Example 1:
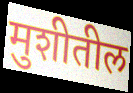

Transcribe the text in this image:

मुशीतील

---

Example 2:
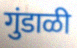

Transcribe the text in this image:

गुंडाळी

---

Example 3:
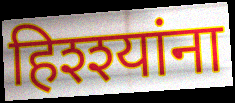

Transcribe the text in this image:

हिश्श्यांना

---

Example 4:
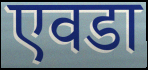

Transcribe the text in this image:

एवडा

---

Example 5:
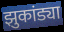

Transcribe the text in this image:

झुकांड्या